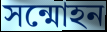
সন্মোহন